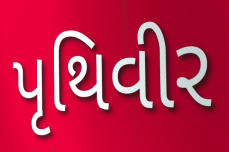
પૃથિવીર